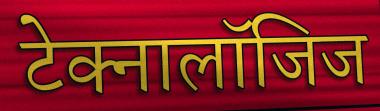
टेक्नालॉजिज